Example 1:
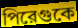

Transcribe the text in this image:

পিরেগুকে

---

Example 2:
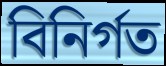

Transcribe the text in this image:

বিনির্গত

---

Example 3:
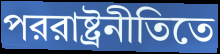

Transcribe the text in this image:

পররাষ্ট্রনীতিতে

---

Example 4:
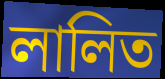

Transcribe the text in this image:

লালিত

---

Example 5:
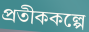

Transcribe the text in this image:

প্রতীককল্পে